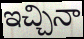
ఇచ్చినా